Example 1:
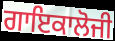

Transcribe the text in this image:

ਗਾਇਕਾਲੋਜੀ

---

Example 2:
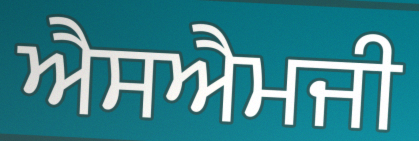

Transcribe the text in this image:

ਐਸਐਮਜੀ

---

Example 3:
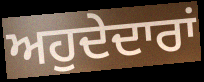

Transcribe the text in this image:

ਅਹੁਦੇਦਾਰਾਂ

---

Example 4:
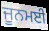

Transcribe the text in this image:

ਜੂਨਮਈ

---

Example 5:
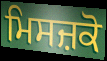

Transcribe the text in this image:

ਮਿਸਜ਼ਕੋ